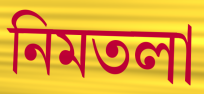
নিমতলা